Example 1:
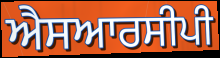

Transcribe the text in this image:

ਐਸਆਰਸੀਪੀ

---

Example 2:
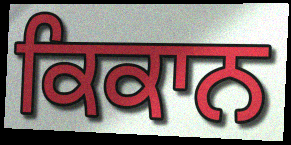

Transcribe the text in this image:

ਕਿਕਾਨ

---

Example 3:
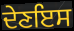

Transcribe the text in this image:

ਦੇਣਇਸ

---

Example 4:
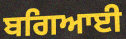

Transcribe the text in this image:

ਬਗਿਆਈ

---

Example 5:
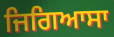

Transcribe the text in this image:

ਜਿਗਿਆਸਾ